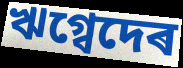
ঋগ্বেদেৰ